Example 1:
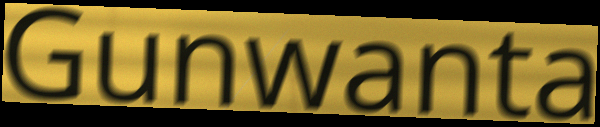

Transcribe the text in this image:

Gunwanta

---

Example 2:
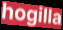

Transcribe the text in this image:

hogilla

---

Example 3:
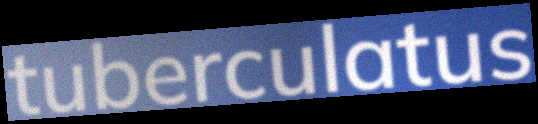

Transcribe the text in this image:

tuberculatus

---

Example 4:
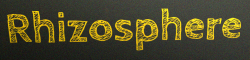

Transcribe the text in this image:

Rhizosphere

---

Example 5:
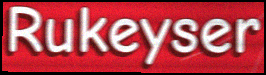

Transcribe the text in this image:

Rukeyser